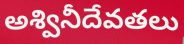
అశ్వినీదేవతలు